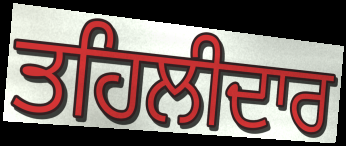
ਤਹਿਲੀਦਾਰ